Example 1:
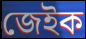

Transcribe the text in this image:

জেইক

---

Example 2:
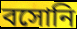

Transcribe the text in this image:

বসোনি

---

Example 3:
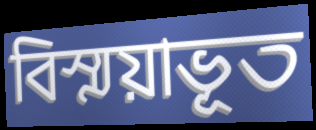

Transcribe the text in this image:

বিস্ময়াভূত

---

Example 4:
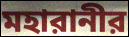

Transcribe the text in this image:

মহারানীর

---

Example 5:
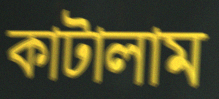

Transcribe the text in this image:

কাটালাম